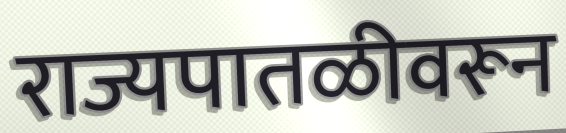
राज्यपातळीवरून